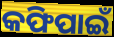
କଫିପାଇଁ